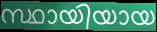
സ്ഥായിയായ